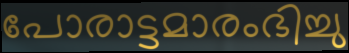
പോരാട്ടമാരംഭിച്ചു